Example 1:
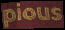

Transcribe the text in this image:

pious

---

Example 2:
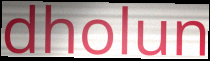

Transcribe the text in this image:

dholun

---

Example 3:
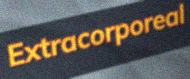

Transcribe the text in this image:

Extracorporeal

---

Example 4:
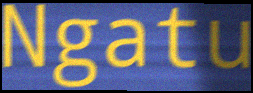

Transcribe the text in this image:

Ngatu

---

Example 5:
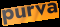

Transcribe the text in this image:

purva